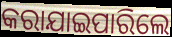
କରାଯାଇପାରିଲେ